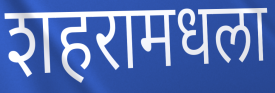
शहरामधला